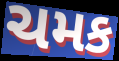
ચમક